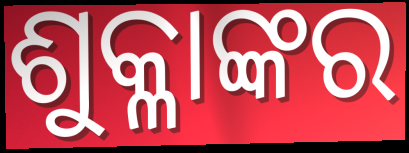
ଶୁକ୍ଳାଙ୍କର